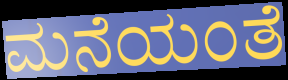
ಮನೆಯಂತೆ